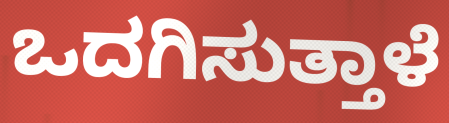
ಒದಗಿಸುತ್ತಾಳೆ